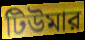
টিউমার